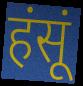
हंसूं